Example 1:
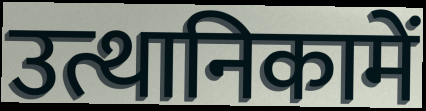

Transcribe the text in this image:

उत्थानिकामें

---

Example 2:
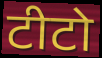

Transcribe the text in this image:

टीटो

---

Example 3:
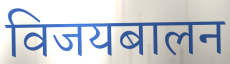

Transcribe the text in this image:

विजयबालन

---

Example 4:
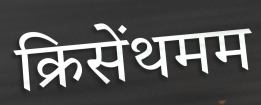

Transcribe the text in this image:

क्रिसेंथमम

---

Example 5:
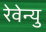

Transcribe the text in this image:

रेवेन्यु